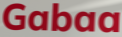
Gabaa